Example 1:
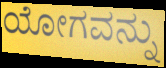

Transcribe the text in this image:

ಯೋಗವನ್ನು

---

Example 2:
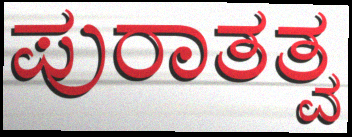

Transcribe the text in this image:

ಪುರಾತತ್ವ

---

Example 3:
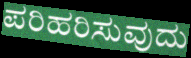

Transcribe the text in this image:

ಪರಿಹರಿಸುವುದು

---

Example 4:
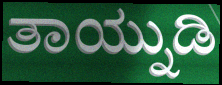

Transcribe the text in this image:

ತಾಯ್ನುಡಿ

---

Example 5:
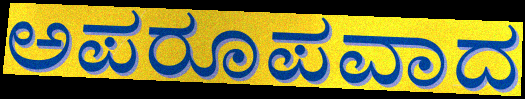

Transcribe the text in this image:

ಅಪರೂಪವಾದ